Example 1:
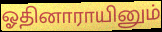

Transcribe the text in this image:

ஓதினாராயினும்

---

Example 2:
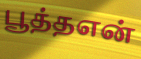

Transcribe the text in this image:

பூத்தஎன்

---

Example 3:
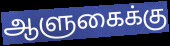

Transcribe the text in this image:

ஆளுகைக்கு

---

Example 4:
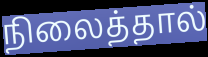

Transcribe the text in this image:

நிலைத்தால்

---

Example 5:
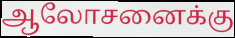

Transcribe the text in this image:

ஆலோசனைக்கு